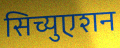
सिच्युएशन